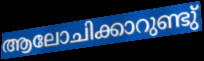
ആലോചിക്കാറുണ്ടു്